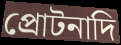
প্রোটনাদি